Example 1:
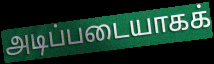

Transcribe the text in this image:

அடிப்படையாகக்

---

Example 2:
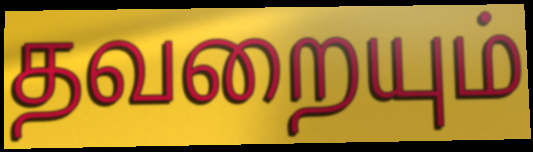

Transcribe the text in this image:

தவறையும்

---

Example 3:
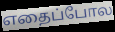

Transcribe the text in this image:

எதைப்போல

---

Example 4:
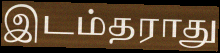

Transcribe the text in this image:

இடம்தராது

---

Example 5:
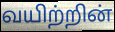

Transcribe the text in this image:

வயிற்றின்